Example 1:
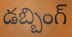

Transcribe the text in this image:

డబ్బింగ్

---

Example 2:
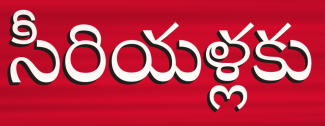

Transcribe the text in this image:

సీరియళ్లకు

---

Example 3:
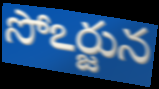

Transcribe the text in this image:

సోఽర్జున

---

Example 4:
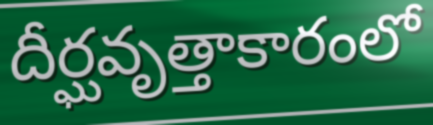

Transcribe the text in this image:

దీర్ఘవృత్తాకారంలో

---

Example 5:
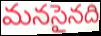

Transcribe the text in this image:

మనసైనది